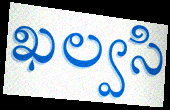
ఖల్వసి